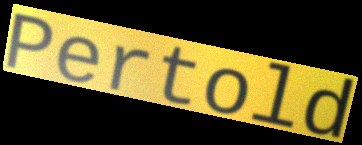
Pertold